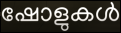
ഷോളുകൾ